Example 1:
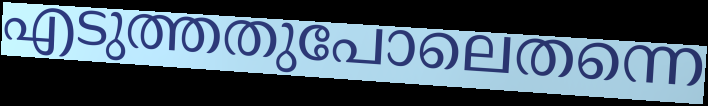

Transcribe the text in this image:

എടുത്തതുപോലെതന്നെ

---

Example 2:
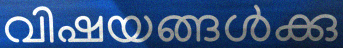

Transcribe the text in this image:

വിഷയങ്ങൾക്കു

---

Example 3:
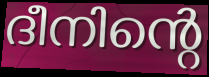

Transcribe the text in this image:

ദീനിന്റെ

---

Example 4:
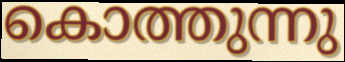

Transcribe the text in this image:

കൊത്തുന്നു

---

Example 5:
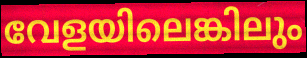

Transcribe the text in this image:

വേളയിലെങ്കിലും